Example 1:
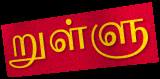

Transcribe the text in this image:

றுள்ளு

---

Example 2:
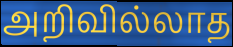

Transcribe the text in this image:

அறிவில்லாத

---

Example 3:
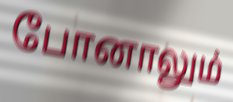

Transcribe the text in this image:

போனாலும்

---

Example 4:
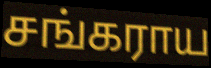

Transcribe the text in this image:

சங்கராய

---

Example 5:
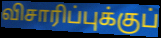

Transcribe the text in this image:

விசாரிப்புக்குப்